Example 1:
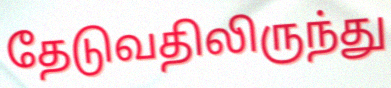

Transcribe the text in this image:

தேடுவதிலிருந்து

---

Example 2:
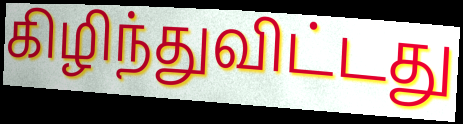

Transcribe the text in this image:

கிழிந்துவிட்டது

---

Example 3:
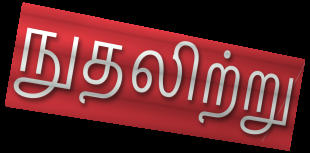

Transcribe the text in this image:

நுதலிற்று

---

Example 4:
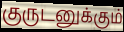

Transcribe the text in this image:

குருடனுக்கும்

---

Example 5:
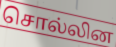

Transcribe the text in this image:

சொல்லின